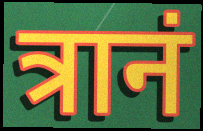
त्रानं